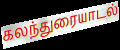
கலந்துரையாடல்